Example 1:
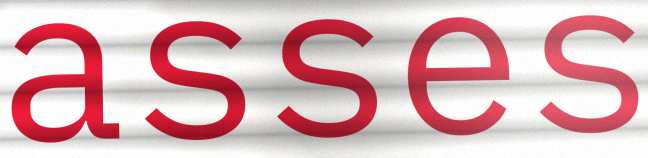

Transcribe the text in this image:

asses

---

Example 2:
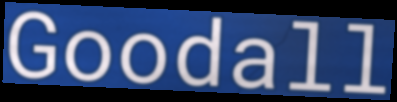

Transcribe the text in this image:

Goodall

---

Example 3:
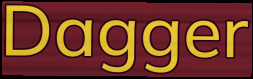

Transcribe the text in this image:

Dagger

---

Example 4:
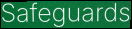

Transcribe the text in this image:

Safeguards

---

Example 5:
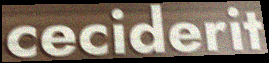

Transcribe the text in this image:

ceciderit